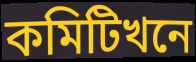
কমিটিখনে